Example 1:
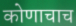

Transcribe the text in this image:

कोणाचाच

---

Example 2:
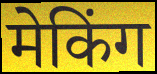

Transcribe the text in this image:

मेकिंग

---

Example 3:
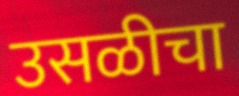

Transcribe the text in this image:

उसळीचा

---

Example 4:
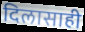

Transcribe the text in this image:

दिलासाही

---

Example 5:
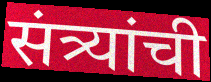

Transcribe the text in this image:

संत्र्यांची